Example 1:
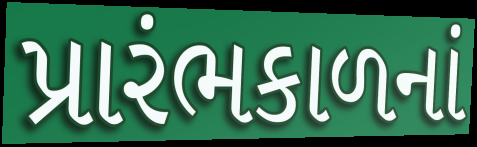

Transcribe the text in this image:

પ્રારંભકાળનાં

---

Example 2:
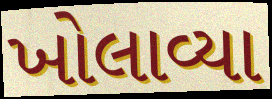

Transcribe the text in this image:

ખોલાવ્યા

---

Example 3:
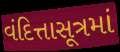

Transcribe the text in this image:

વંદિત્તાસૂત્રમાં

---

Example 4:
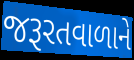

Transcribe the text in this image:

જરૂરતવાળાને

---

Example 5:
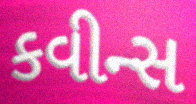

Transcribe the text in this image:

કવીન્સ